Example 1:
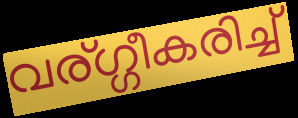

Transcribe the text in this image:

വര്ഗ്ഗീകരിച്ച്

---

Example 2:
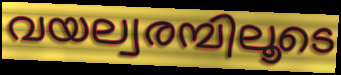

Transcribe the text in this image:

വയല്വരമ്പിലൂടെ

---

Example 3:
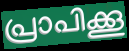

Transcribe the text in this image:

പ്രാപിക്കൂ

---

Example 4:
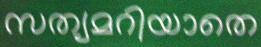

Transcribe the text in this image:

സത്യമറിയാതെ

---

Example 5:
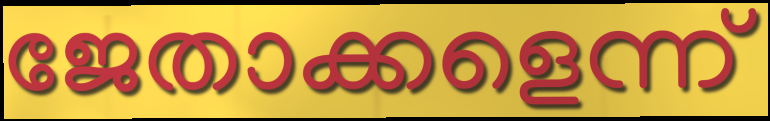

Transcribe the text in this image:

ജേതാക്കളെന്ന്